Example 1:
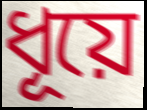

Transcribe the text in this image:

ধূয়ে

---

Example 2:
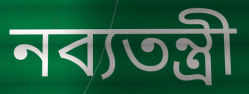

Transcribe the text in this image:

নব্যতন্ত্রী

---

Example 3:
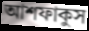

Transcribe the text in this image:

আশফাকুস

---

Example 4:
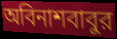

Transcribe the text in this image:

অবিনাশবাবুর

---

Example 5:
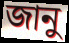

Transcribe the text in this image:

জানু